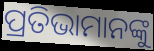
ପ୍ରତିଭାମାନଙ୍କୁ